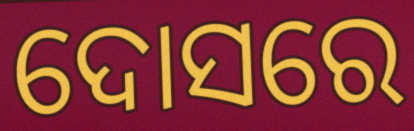
ଦୋସରେ